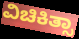
ವಿಚಿಕಿತ್ಸಾ